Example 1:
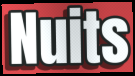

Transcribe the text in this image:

Nuits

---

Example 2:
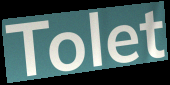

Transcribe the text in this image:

Tolet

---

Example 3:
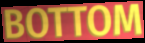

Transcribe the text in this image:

BOTTOM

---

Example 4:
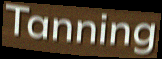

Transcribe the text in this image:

Tanning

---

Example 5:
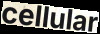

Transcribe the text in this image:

cellular